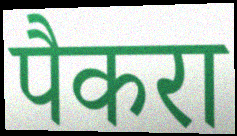
पैकरा